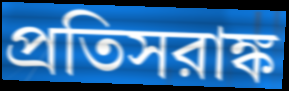
প্রতিসরাঙ্ক